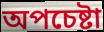
অপচেষ্টা